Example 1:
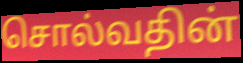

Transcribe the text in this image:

சொல்வதின்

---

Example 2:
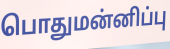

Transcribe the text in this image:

பொதுமன்னிப்பு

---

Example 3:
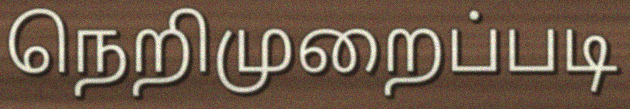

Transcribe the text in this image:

நெறிமுறைப்படி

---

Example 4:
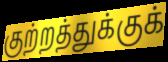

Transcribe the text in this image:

குற்றத்துக்குக்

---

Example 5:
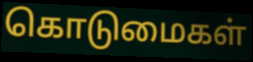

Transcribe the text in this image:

கொடுமைகள்